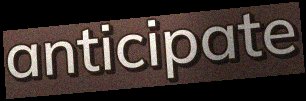
anticipate